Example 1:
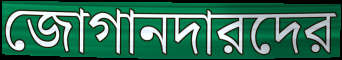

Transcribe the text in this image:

জোগানদারদের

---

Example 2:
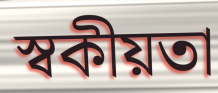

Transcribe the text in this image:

স্বকীয়তা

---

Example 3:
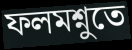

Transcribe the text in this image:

ফলমশ্নুতে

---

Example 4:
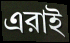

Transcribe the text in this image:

এরাই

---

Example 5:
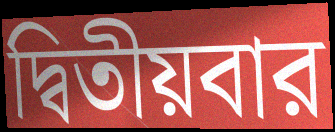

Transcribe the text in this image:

দ্বিতীয়বার